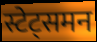
स्टेट्समन